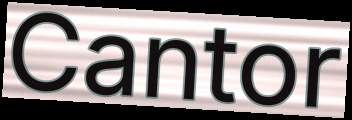
Cantor